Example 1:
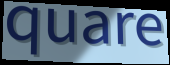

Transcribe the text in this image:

quare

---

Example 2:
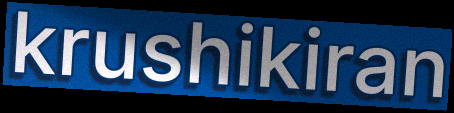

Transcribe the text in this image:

krushikiran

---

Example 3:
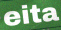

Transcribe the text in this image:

eita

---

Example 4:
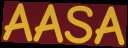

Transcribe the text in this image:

AASA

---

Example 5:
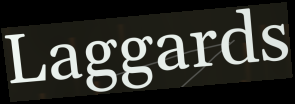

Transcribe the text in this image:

Laggards